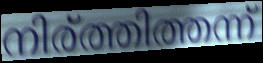
നിര്ത്തിത്തന്ന്